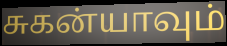
சுகன்யாவும்